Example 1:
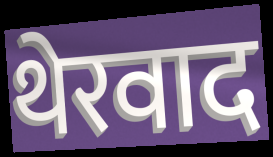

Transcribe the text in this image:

थेरवाद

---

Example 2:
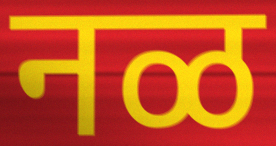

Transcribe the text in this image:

नळ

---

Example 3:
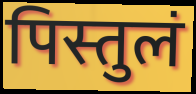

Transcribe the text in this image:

पिस्तुलं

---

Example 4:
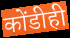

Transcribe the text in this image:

कोंडीही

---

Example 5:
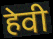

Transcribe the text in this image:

हेवी